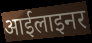
आईलाइनर